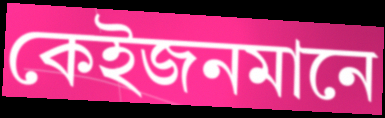
কেইজনমানে